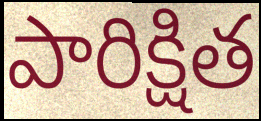
పారిక్షిత